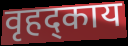
वृहद्काय